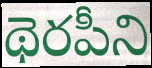
థెరపీని